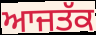
ਆਜਤੱਕ